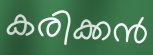
കരിക്കൻ